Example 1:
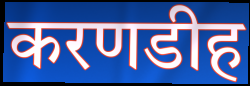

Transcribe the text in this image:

करणडीह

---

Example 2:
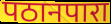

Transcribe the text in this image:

पठानपारा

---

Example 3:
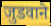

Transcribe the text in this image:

जुडवाने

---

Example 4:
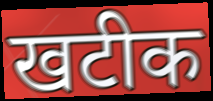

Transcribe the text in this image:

खटीक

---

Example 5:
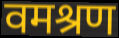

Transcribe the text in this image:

वमश्रण